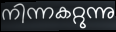
നിന്നകറ്റുന്നു